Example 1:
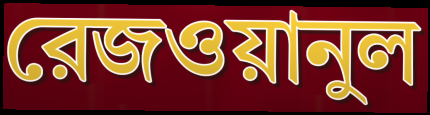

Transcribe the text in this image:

রেজওয়ানুল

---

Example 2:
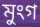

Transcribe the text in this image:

মুংগ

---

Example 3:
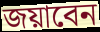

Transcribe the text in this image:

জয়াবেন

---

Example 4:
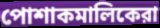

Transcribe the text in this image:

পোশাকমালিকেরা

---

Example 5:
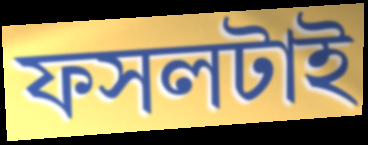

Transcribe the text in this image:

ফসলটাই